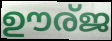
ഊര്ജ